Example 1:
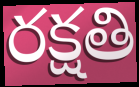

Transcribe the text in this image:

రక్షతి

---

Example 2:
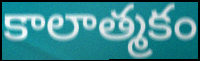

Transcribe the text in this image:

కాలాత్మకం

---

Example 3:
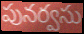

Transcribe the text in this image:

పునర్వసు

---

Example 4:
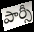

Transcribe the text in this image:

పార్సీ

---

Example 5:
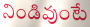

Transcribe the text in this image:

నిండివుంటే